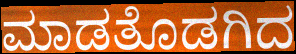
ಮಾಡತೊಡಗಿದ